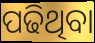
ପଢିଥିବା